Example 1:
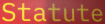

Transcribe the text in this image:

Statute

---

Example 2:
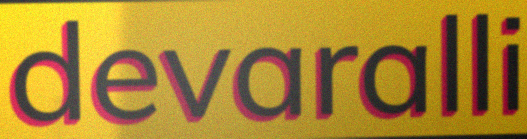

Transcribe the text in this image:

devaralli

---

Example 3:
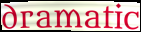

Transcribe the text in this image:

dramatic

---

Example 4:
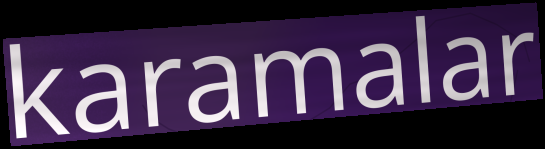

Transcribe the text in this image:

karamalar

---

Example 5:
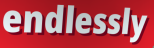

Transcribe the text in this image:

endlessly